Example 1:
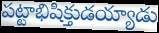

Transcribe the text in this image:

పట్టాభిషిక్తుడయ్యాడు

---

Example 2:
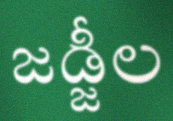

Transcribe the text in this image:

జడ్జీల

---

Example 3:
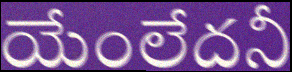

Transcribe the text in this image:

యేంలేదనీ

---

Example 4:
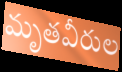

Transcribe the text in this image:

మృతవీరుల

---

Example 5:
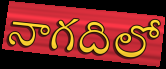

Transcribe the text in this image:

నాగదిలో